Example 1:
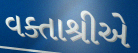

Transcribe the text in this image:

વક્તાશ્રીએ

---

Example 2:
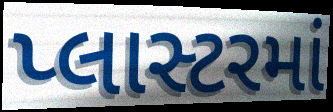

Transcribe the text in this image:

પ્લાસ્ટરમાં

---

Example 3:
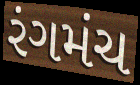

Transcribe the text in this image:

રંગમંચ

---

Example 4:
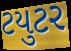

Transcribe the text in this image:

ટયુટર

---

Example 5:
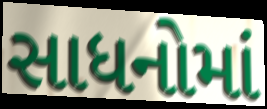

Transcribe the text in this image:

સાધનોમાં